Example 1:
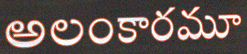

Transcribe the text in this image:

అలంకారమూ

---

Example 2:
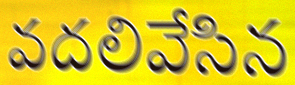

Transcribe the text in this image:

వదలివేసిన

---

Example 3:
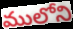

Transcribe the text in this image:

ములోని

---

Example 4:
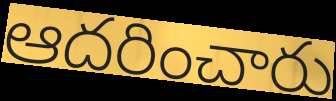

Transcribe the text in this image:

ఆదరించారు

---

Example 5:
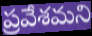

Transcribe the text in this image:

ప్రవేశమని